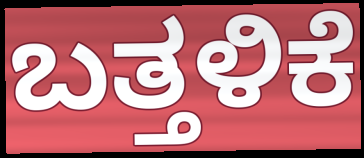
ಬತ್ತಳಿಕೆ